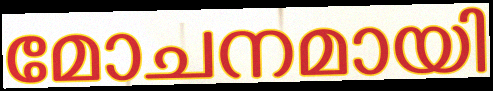
മോചനമായി